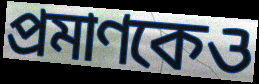
প্রমাণকেও